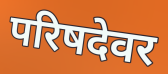
परिषदेवर